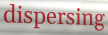
dispersing